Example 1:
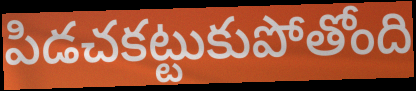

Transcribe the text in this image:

పిడచకట్టుకుపోతోంది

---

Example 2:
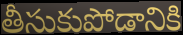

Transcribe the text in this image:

తీసుకుపోడానికి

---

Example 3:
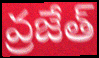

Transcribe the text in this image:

వ్రజేత్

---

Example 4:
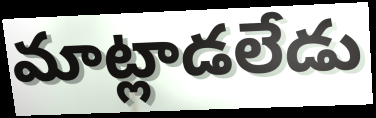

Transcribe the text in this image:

మాట్లాడలేడు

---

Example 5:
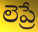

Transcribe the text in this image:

లెప్రే